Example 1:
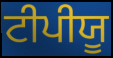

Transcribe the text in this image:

ਟੀਪੀਯੂ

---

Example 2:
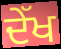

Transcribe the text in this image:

ਦੇੱਖ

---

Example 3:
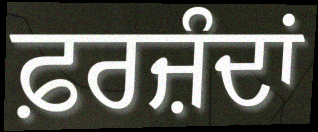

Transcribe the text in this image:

ਫ਼ਰਜ਼ੰਦਾਂ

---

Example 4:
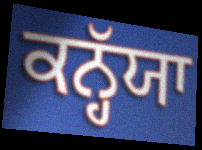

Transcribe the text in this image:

ਕਨ੍ਹੱਯਾ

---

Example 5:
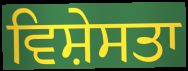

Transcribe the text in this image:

ਵਿਸ਼ੇਸਤਾ